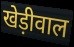
खेड़ीवाल